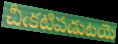
చీఁకటిపడుటయె